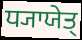
ਧ੍ਯਾਯੇਤ੍